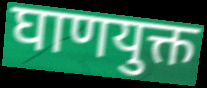
घाणयुक्त